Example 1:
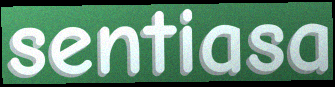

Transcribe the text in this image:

sentiasa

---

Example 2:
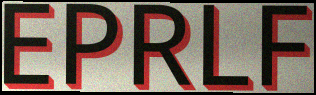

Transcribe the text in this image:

EPRLF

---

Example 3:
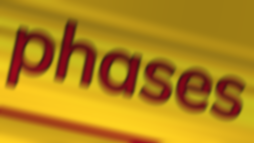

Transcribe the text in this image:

phases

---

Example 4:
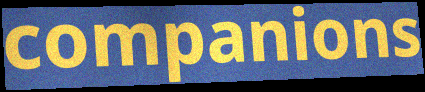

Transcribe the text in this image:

companions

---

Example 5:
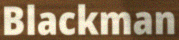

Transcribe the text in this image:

Blackman